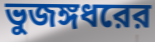
ভুজঙ্গধরের